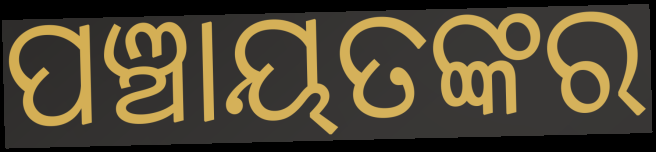
ପଞ୍ଚାୟତଙ୍କର